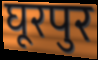
घूरपुर